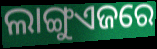
ଲାଙ୍ଗୁଏଜରେ